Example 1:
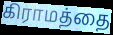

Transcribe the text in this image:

கிராமத்தை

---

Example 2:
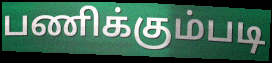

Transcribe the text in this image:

பணிக்கும்படி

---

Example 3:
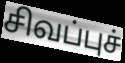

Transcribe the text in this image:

சிவப்புச்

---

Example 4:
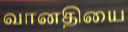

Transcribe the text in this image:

வானதியை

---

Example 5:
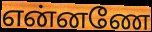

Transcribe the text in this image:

என்னணே